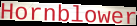
Hornblower